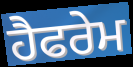
ਹੈਫਰੇਮ